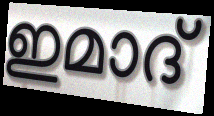
ഇമാദ്